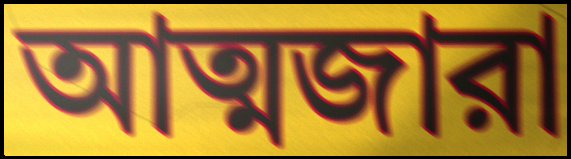
আত্মজারা